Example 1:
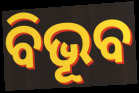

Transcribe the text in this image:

ବିଭୂବ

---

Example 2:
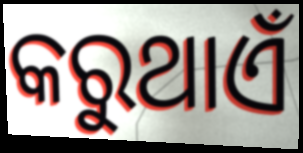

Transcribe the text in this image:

କରୁଥାଏଁ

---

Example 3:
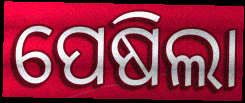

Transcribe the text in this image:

ପେଷିଲା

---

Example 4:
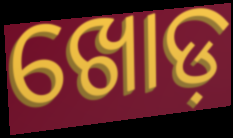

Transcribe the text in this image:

ଖୋଡ଼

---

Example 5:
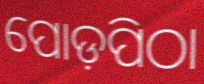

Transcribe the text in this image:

ପୋଡ଼ପିଠା